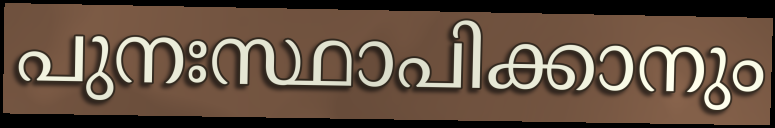
പുനഃസ്ഥാപിക്കാനും